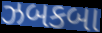
ઝબકબા